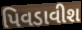
પિવડાવીશ